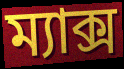
ম্যাক্স